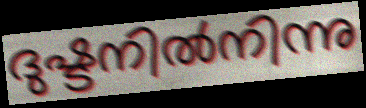
ദുഷ്ടനിൽനിന്നു